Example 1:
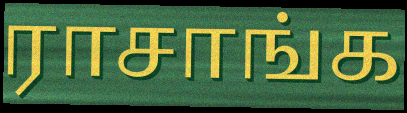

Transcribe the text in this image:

ராசாங்க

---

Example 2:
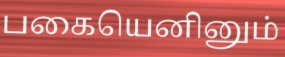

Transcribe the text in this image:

பகையெனினும்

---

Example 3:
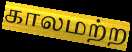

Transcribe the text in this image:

காலமற்ற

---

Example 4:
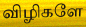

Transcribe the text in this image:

விழிகளே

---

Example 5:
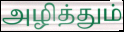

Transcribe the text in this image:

அழித்தும்